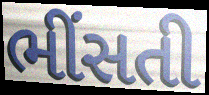
ભીંસતી